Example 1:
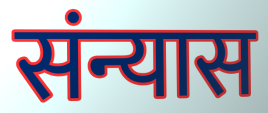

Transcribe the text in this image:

संन्यास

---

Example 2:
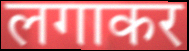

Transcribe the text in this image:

लगाकर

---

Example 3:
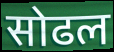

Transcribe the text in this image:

सोढल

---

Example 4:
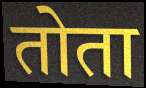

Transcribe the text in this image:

तोता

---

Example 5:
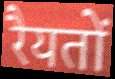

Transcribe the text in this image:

रैयतों